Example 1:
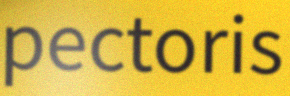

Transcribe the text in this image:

pectoris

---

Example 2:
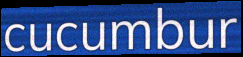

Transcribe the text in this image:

cucumbur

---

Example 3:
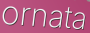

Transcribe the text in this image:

ornata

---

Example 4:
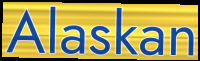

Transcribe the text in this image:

Alaskan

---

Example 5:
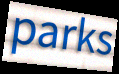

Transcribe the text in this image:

parks